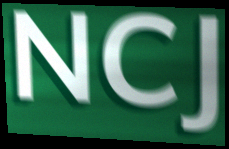
NCJ